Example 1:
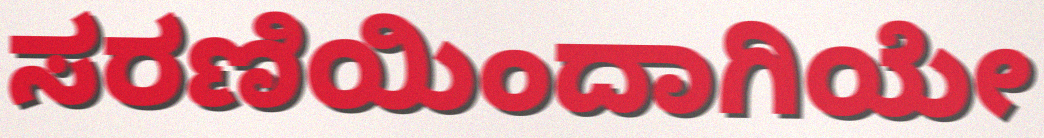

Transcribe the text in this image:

ಸರಣಿಯಿಂದಾಗಿಯೇ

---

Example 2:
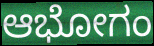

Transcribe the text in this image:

ಆಭೋಗಂ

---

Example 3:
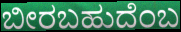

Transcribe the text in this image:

ಬೀರಬಹುದೆಂಬ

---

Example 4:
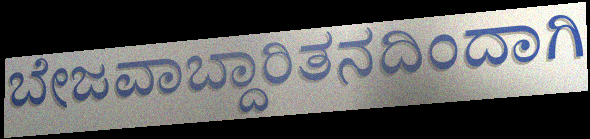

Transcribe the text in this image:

ಬೇಜವಾಬ್ದಾರಿತನದಿಂದಾಗಿ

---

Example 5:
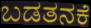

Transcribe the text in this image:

ಬಡತನಕೆ